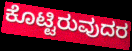
ಕೊಟ್ಟಿರುವುದರ